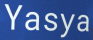
Yasya